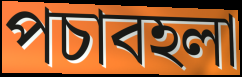
পচাবহলা